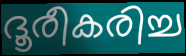
ദൂരീകരിച്ച